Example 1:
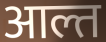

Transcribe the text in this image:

आल्त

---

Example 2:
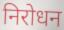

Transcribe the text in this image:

निरोधन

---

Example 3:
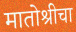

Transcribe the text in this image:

मातोश्रीचा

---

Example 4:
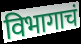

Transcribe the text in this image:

विभागाचं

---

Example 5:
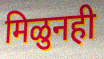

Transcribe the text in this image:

मिळुनही